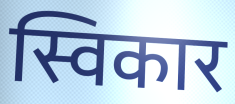
स्विकार